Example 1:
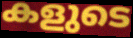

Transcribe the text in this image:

കളുടെ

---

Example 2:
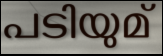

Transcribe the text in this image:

പടിയുമ്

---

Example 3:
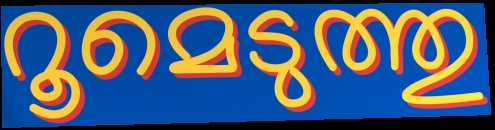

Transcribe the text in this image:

റൂമെടുത്തു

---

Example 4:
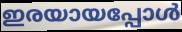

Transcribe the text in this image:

ഇരയായപ്പോൾ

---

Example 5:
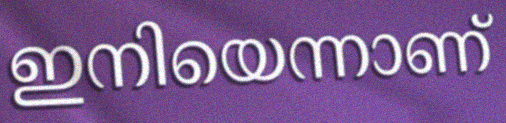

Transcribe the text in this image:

ഇനിയെന്നാണ്